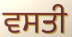
ਵਸਤੀ